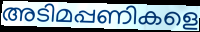
അടിമപ്പണികളെ